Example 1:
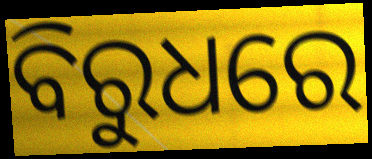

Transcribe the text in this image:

ବିରୁଧରେ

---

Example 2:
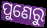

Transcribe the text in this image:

ପୁଣେରୁ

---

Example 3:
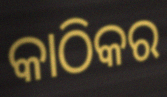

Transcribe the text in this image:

କାଠିକର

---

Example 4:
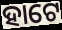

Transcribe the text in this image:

ହାଟେ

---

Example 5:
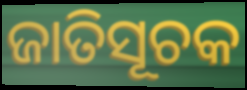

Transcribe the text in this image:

ଜାତିସୂଚକ